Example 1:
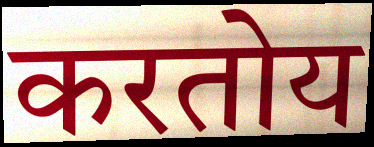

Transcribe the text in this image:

करतोय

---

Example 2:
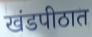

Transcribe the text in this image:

खंडपीठात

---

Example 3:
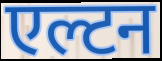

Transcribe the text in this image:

एल्टन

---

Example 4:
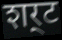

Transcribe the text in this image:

शर्ट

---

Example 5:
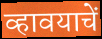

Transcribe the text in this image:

व्हावयाचें